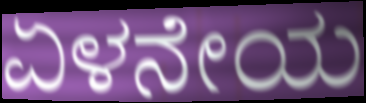
ಏಳನೇಯ